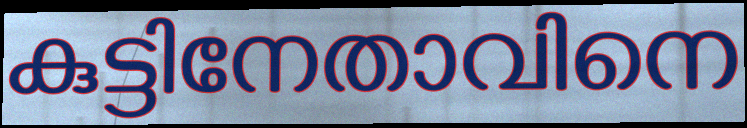
കുട്ടിനേതാവിനെ